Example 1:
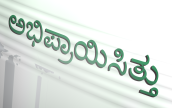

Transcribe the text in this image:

ಅಭಿಪ್ರಾಯಿಸಿತ್ತು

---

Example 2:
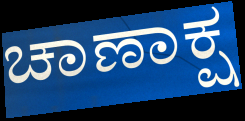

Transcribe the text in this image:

ಚಾಣಾಕ್ಷ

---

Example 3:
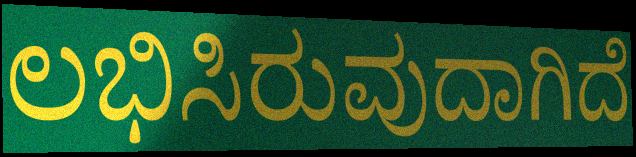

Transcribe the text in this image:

ಲಭಿಸಿರುವುದಾಗಿದೆ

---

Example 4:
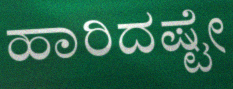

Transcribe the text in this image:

ಹಾರಿದಷ್ಟೇ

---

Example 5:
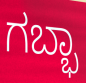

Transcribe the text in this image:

ಗಬ್ಭಾ